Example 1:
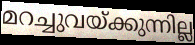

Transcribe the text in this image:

മറച്ചുവയ്ക്കുന്നില്ല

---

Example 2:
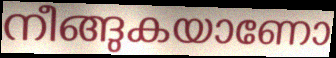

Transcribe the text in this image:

നീങ്ങുകയാണോ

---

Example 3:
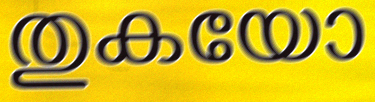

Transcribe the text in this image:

തുകയോ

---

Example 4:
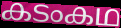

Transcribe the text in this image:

കടംകഥ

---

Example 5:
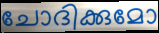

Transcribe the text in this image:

ചോദിക്കുമോ